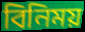
বিনিময়